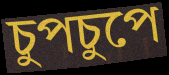
চুপচুপে